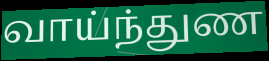
வாய்ந்துண